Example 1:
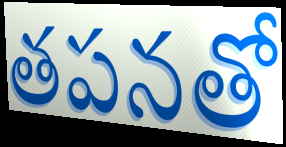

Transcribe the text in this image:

తపనతో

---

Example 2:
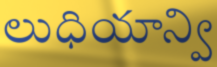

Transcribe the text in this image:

లుధియాన్వి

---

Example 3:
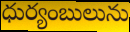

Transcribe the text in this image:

ధుర్యంబులును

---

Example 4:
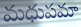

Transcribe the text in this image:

మధుపమా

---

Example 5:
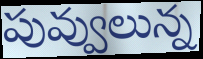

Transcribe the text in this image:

పువ్వులున్న